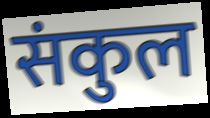
संकुल